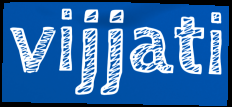
vijjati